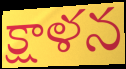
క్షాళన